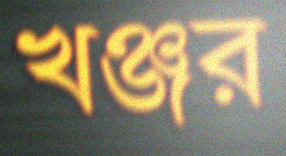
খঞ্জর